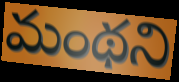
మంథని